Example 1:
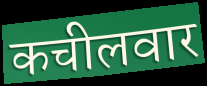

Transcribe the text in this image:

कचीलवार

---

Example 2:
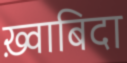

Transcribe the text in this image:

ख़्वाबिदा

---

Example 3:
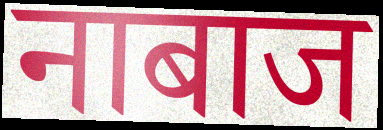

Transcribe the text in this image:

नाबाज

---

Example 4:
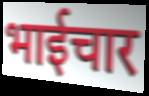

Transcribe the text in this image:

भाईचार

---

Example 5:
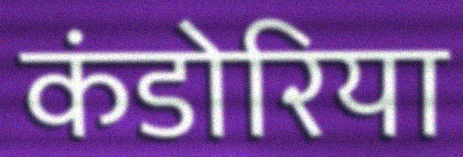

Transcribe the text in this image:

कंडोरिया